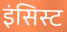
इंसिस्ट